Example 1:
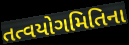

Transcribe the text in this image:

તત્વયોગમિતિના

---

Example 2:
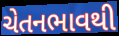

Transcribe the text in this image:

ચેતનભાવથી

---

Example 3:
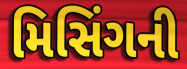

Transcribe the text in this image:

મિસિંગની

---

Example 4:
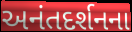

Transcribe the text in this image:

અનંતદર્શનના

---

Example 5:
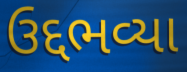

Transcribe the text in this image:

ઉદ્દભવ્યા